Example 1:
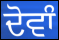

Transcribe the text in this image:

ਦੋਵਾੰ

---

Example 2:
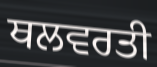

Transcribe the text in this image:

ਥਲਵਰਤੀ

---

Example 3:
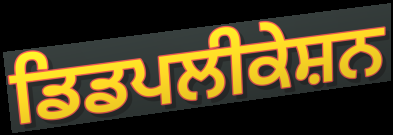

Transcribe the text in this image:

ਡਿਡਪਲੀਕੇਸ਼ਨ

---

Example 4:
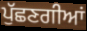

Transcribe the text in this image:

ਪੁੱਛਣਗੀਆਂ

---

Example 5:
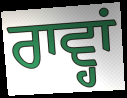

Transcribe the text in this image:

ਰਾਵ੍ਹਾਂ